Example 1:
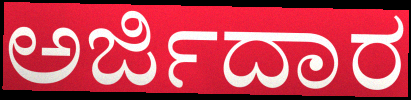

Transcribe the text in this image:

ಅರ್ಜಿದಾರ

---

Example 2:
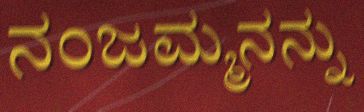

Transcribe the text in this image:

ನಂಜಮ್ಮನನ್ನು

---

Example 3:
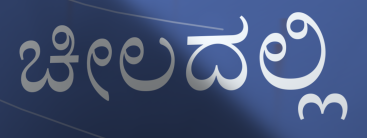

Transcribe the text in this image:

ಚೀಲದಲ್ಲಿ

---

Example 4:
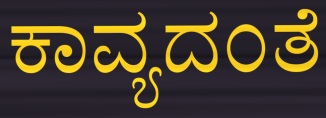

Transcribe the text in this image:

ಕಾವ್ಯದಂತೆ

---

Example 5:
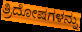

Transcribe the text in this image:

ತ್ರಿದೋಷಗಳನ್ನು